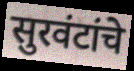
सुरवंटांचे